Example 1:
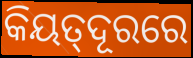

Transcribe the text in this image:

କିୟତ୍‌ଦୂରରେ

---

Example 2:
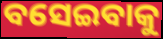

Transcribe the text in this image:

ବସେଇବାକୁ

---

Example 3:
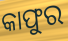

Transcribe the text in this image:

କାଫୁର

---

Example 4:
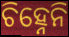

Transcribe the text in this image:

ଚିହ୍ନେନି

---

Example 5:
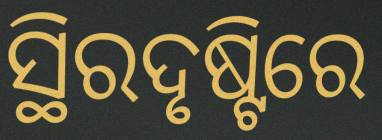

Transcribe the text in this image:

ସ୍ଥିରଦୃଷ୍ଟିରେ